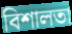
বিশালতা